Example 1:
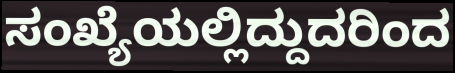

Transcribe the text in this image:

ಸಂಖ್ಯೆಯಲ್ಲಿದ್ದುದರಿಂದ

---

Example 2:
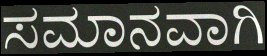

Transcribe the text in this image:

ಸಮಾನವಾಗಿ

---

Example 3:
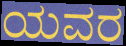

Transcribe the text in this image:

ಯವರ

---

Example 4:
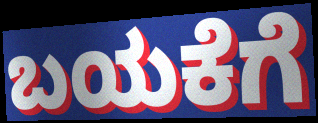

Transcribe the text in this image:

ಬಯಕೆಗೆ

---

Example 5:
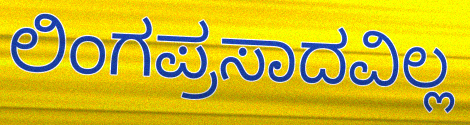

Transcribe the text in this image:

ಲಿಂಗಪ್ರಸಾದವಿಲ್ಲ